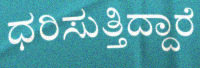
ಧರಿಸುತ್ತಿದ್ದಾರೆ